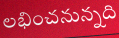
లభించనున్నది